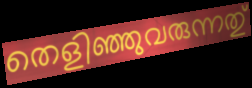
തെളിഞ്ഞുവരുന്നതു്